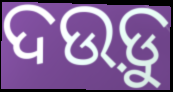
ଦଉଡ଼ୁ